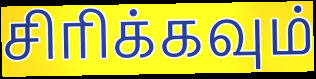
சிரிக்கவும்